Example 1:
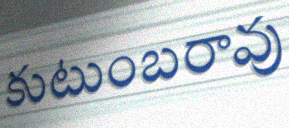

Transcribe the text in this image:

కుటుంబరావు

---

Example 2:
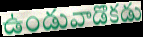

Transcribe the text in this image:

ఉండువాడొకడు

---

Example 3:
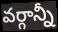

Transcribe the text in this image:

వర్గాన్నీ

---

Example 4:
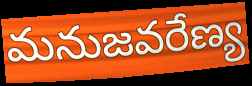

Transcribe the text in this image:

మనుజవరేణ్య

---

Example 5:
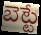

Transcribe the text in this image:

బెట్టే